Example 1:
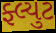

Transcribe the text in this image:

ફ્લ્યુટ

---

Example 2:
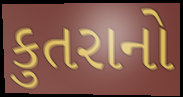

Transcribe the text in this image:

કુતરાનો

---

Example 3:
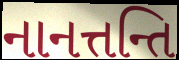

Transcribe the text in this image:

નાનત્તન્તિ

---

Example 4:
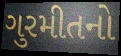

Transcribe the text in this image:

ગુરમીતનો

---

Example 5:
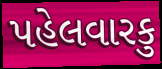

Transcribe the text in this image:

પહેલવારકુ